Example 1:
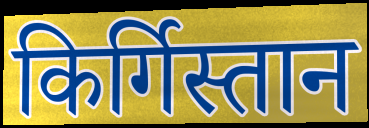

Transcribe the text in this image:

किर्गिस्तान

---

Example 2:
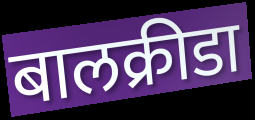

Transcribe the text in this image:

बालक्रीडा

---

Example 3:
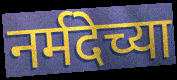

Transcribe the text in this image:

नर्मदेच्या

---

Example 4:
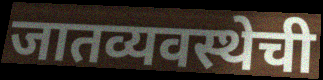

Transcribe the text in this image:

जातव्यवस्थेची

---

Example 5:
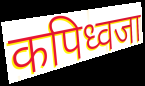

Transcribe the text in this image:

कपिध्वजा